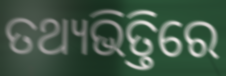
ତଥ୍ୟଭିତ୍ତିରେ